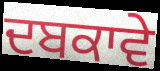
ਦਬਕਾਵੇ